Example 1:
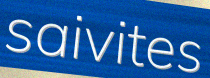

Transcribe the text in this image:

saivites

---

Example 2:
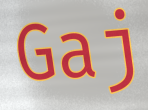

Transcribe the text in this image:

Gaj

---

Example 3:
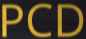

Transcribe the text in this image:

PCD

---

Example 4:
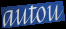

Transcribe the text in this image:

autou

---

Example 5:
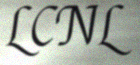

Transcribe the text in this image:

LCNL